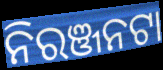
ନିରଞ୍ଜନଟା